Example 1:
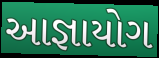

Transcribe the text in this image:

આજ્ઞાયોગ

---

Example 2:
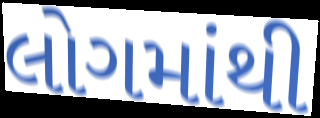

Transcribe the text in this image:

લોગમાંથી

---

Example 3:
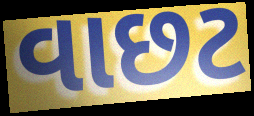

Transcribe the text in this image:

વાછટ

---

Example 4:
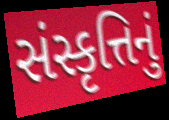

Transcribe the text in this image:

સંસ્કૃત્તિનું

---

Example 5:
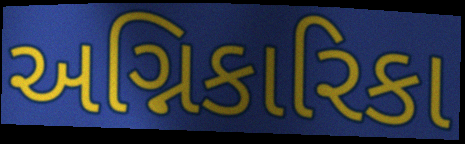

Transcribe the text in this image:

અગ્નિકારિકા